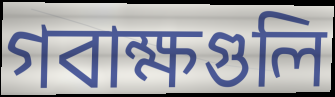
গবাক্ষগুলি